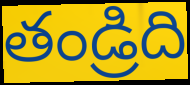
తండ్రిది